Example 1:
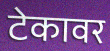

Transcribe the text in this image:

टेकावर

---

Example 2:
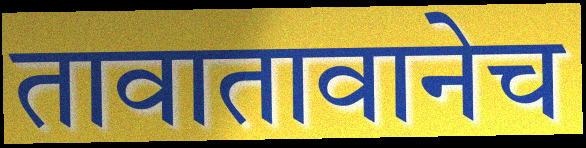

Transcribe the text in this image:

तावातावानेच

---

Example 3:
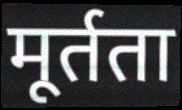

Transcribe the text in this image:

मूर्तता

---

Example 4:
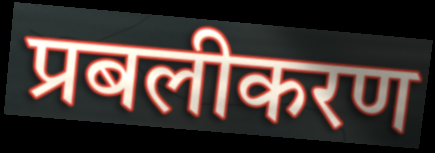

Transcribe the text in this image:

प्रबलीकरण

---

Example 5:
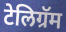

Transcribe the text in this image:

टेलिग्रॅम